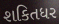
શકિતધર